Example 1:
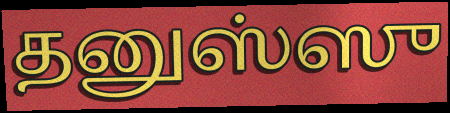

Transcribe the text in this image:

தனுஸ்ஸு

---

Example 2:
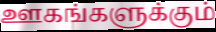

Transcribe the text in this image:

ஊகங்களுக்கும்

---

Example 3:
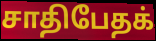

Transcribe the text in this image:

சாதிபேதக்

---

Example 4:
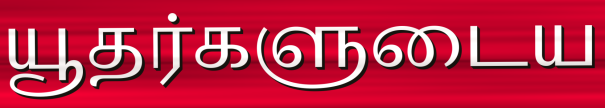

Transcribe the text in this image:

யூதர்களுடைய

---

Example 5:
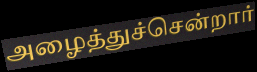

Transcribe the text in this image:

அழைத்துச்சென்றார்